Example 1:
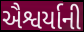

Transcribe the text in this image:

ઐશ્વર્યાની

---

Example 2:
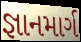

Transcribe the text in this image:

જ્ઞાનમાર્ગ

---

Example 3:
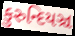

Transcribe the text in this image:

કુરુન્દિયઞ્ચ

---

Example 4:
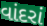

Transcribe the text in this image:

વાંદરાં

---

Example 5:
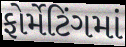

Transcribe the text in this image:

ફોર્મેટિંગમાં